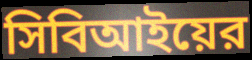
সিবিআইয়ের